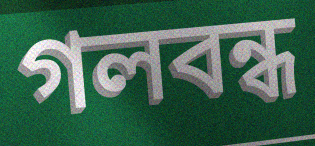
গলবন্ধ